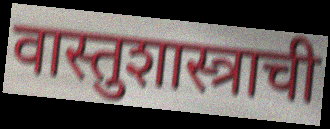
वास्तुशास्त्राची